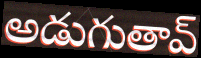
అడుగుతావ్